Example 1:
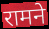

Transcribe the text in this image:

रामने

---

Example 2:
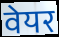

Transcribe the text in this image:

वेयर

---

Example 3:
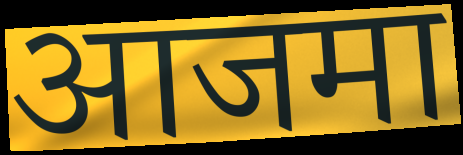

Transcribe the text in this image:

आजमा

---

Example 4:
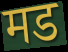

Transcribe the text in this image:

मड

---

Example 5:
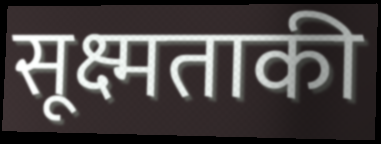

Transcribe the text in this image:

सूक्ष्मताकी